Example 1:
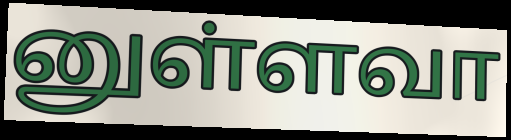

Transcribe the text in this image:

னுள்ளவா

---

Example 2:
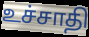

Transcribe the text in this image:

உச்சாதி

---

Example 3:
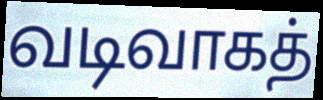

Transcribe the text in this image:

வடிவாகத்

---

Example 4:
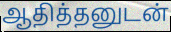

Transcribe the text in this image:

ஆதித்தனுடன்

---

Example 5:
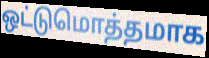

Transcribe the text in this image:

ஒட்டுமொத்தமாக